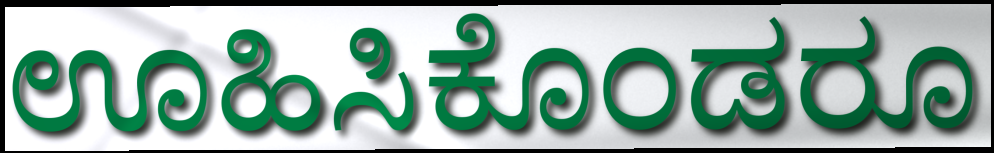
ಊಹಿಸಿಕೊಂಡರೂ